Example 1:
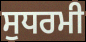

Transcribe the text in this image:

ਸੁਧਰਮੀ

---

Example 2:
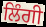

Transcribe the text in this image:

ਲਿੰਗੀ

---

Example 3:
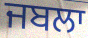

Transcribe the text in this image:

ਜਬਲਾ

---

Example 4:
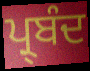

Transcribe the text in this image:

ਪ੍ਰ੍ਬੰਦ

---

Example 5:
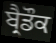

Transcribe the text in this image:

ਬ੍ਰੈਡੌਕ